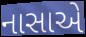
નાસાએ